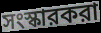
সংস্কারকরা